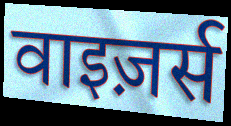
वाइज़र्स